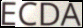
ECDA